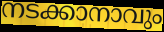
നടക്കാനാവും